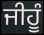
ਜੀਹੂੰ